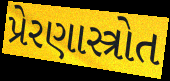
પ્રેરણાસ્ત્રોત